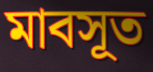
মাবসূত